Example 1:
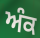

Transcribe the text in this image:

ਅੰਕ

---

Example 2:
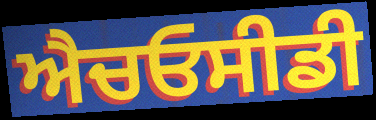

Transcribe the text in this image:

ਐਚਓਸੀਡੀ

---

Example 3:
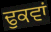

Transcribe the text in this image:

ਢੁਕਵਾਂ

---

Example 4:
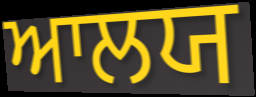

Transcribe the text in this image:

ਆਲਯ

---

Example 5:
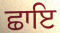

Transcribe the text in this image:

ਛਾਇ